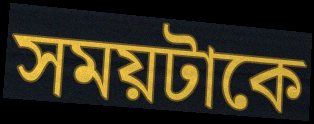
সময়টাকে